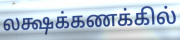
லக்ஷக்கணக்கில்